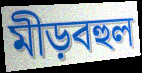
মীড়বহুল